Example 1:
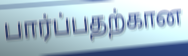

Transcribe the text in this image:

பார்ப்பதற்கான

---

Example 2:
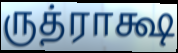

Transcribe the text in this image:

ருத்ராக்ஷ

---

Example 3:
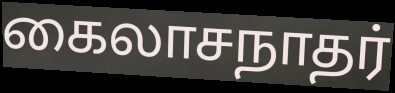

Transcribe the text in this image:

கைலாசநாதர்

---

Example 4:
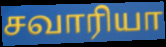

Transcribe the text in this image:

சவாரியா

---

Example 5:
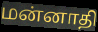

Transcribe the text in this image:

மன்னாதி